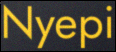
Nyepi